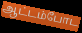
ஆட்டம்போட